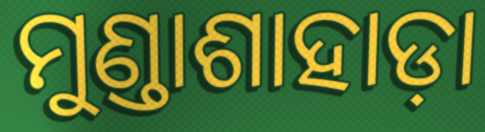
ମୁଣ୍ଡାଶାହାଡ଼ା